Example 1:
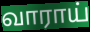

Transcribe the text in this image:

வாராய்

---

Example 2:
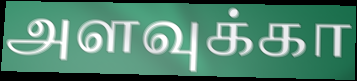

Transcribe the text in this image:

அளவுக்கா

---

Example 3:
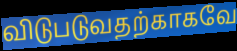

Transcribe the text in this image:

விடுபடுவதற்காகவே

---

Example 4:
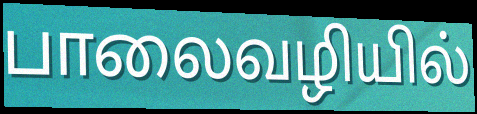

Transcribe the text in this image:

பாலைவழியில்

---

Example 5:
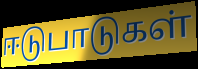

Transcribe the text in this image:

ஈடுபாடுகள்